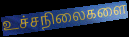
உச்சநிலைகளை